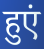
हुएं